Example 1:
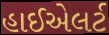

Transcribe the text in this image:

હાઈએલર્ટ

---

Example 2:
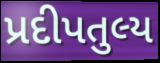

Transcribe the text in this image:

પ્રદીપતુલ્ય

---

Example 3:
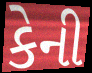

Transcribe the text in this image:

કેની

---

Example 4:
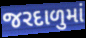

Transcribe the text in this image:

જરદાળુમાં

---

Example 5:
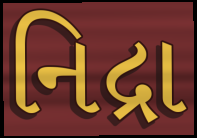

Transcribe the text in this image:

નિદ્રા